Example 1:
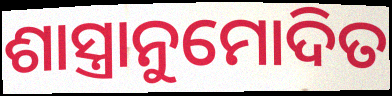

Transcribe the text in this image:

ଶାସ୍ତ୍ରାନୁମୋଦିତ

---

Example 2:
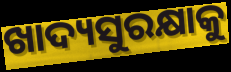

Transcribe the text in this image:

ଖାଦ୍ୟସୁରକ୍ଷାକୁ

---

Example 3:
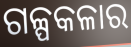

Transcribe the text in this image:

ଗଳ୍ପକଳାର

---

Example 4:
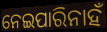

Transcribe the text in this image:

ନେଇପାରିନାହଁ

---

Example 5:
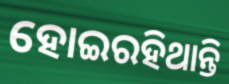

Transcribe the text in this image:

ହୋଇରହିଥାନ୍ତି